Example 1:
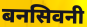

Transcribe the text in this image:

बनसिवनी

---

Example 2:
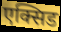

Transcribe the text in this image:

एक्सिड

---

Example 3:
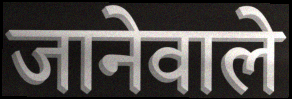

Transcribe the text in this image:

जानेवाले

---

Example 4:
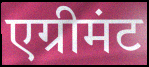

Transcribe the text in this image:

एग्रीमंट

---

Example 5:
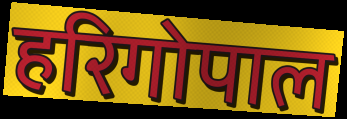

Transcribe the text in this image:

हरिगोपाल